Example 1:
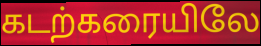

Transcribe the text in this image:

கடற்கரையிலே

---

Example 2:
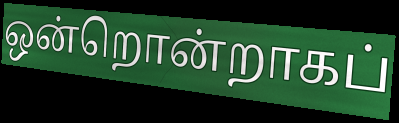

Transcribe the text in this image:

ஒன்றொன்றாகப்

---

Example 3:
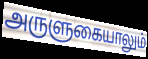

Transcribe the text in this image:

அருளுகையாலும்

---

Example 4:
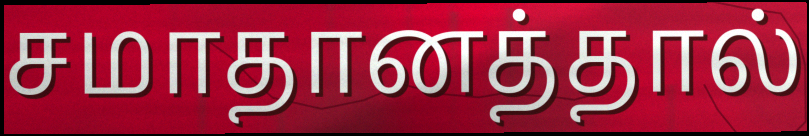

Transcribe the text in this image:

சமாதானத்தால்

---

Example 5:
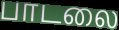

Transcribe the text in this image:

பாடலை